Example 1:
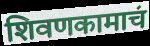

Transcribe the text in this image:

शिवणकामाचं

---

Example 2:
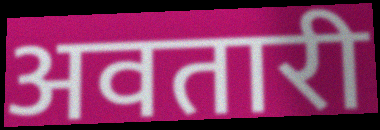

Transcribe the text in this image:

अवतारी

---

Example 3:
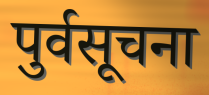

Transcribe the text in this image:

पुर्वसूचना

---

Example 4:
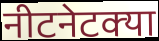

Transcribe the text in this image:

नीटनेटक्‍या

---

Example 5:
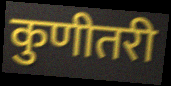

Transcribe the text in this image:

कुणीतरी